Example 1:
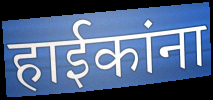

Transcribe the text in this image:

हाईकांना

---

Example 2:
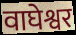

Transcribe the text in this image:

वाघेश्वर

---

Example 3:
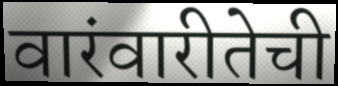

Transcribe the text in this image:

वारंवारीतेची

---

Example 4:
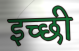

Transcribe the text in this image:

इच्छी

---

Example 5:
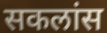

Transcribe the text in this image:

सकलांस